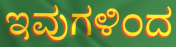
ಇವುಗಳಿಂದ